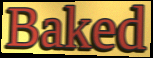
Baked